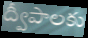
ద్వీపాలకు